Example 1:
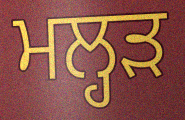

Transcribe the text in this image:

ਮਲ੍ਹੜ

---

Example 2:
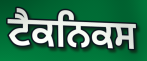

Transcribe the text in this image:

ਟੈਕਨਿਕਸ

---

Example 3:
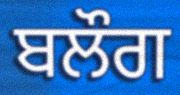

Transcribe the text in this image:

ਬਲੌਗ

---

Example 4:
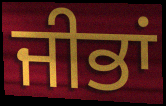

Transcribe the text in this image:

ਜੀਭਾਂ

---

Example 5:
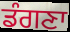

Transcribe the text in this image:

ਡੰਗਣਾ